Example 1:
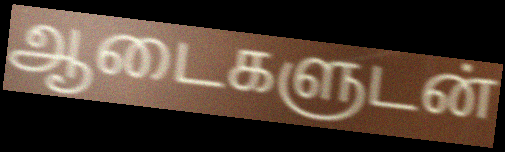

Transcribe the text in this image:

ஆடைகளுடன்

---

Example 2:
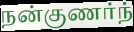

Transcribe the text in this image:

நன்குணர்ந்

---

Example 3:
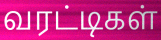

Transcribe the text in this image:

வரட்டிகள்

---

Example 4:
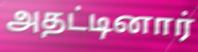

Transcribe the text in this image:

அதட்டினார்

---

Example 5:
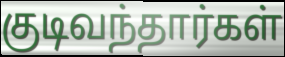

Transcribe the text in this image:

குடிவந்தார்கள்